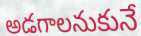
అడగాలనుకునే